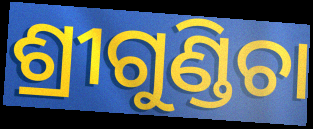
ଶ୍ରୀଗୁଣ୍ଡିଚା